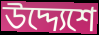
উদ্দ্যেশে